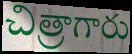
చిత్రాగారు